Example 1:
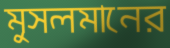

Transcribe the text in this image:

মুসলমানের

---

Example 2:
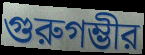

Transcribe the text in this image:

গুরুগম্ভীর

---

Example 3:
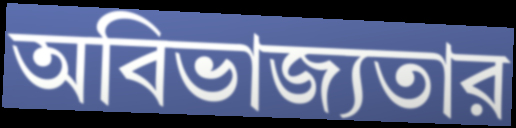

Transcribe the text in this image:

অবিভাজ্যতার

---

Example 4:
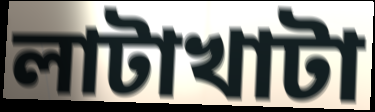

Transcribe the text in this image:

লাটাখাটা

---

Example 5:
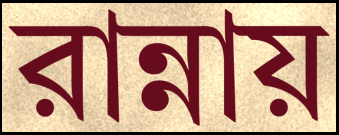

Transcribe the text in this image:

রান্নায়